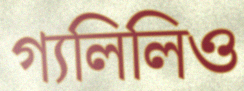
গ্যলিলিও